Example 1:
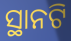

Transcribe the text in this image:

ସ୍ଥାନଟି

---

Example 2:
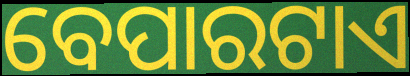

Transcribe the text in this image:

ବେପାରଟାଏ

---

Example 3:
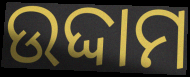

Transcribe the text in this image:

ଉଦ୍ଦାମ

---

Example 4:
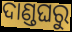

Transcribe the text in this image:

ଦାଣ୍ଡଘରୁ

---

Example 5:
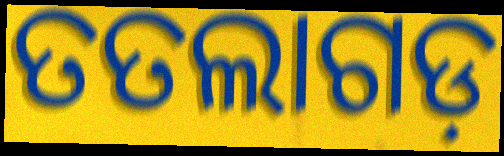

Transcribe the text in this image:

ତତଲାଗଡ଼